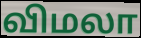
விமலா